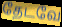
தேடவே